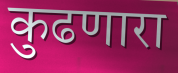
कुढणारा